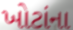
ખોટાંના